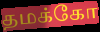
தமக்கோ